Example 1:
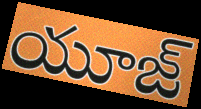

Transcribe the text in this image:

యూజ్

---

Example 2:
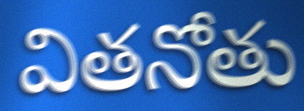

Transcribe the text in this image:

వితనోతు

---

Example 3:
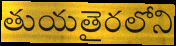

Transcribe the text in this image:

తుయతైరలోని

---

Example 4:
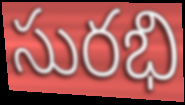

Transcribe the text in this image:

సురభి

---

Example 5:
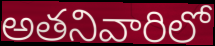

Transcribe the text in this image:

అతనివారిలో